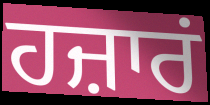
ਹਜ਼ਾਰਂ